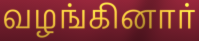
வழங்கினார்